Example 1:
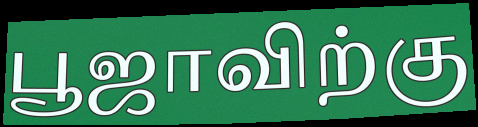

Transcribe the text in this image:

பூஜாவிற்கு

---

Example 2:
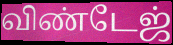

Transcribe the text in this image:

விண்டேஜ்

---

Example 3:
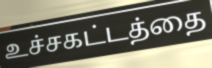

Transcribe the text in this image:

உச்சகட்டத்தை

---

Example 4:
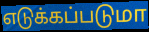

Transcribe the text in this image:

எடுக்கப்படுமா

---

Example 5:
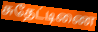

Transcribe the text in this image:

சுதேட்டிணை